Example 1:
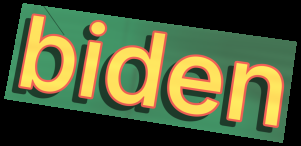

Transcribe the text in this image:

biden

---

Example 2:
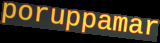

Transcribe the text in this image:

poruppamar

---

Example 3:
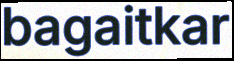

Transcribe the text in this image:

bagaitkar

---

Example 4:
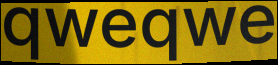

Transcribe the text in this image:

qweqwe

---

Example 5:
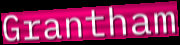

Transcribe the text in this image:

Grantham